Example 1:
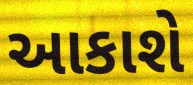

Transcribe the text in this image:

આકાશે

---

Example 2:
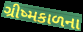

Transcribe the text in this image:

ગ્રીષ્મકાળના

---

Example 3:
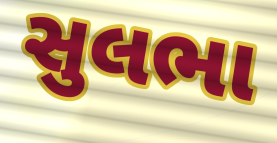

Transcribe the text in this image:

સુલભા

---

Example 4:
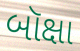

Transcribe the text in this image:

બૉક્ષા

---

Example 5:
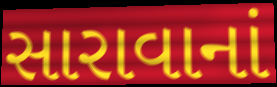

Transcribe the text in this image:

સારાવાનાં